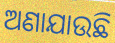
ଅଣାଯାଉଛି